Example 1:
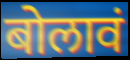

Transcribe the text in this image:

बोलावं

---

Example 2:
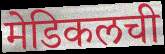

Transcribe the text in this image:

मेडिकलची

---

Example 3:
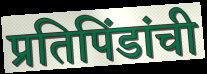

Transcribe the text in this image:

प्रतिपिंडांची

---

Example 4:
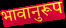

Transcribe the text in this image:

भावानुरूप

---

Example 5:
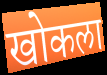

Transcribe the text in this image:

खोकला